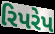
રિપરેપ